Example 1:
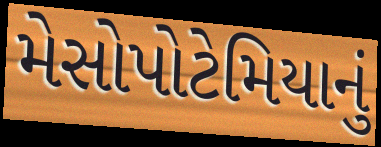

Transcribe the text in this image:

મેસોપોટેમિયાનું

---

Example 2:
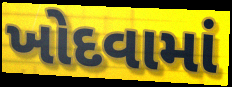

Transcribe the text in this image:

ખોદવામાં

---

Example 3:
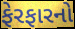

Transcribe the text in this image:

ફેરફારનો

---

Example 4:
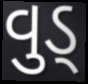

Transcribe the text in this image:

વુડ્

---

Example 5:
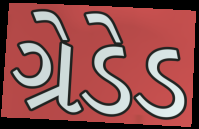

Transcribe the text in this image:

ગ્રેડેડ